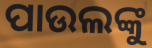
ପାଉଲଙ୍କୁ